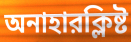
অনাহারক্লিষ্ট